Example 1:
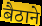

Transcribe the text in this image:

बैठाने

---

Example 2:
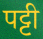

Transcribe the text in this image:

पट्टी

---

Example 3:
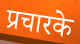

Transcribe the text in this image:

प्रचारके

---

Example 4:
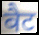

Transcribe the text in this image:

बैट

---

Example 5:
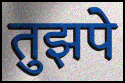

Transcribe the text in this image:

तुझपे